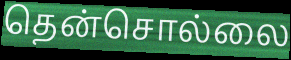
தென்சொல்லை